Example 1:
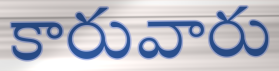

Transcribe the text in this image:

కారువారు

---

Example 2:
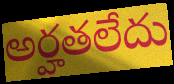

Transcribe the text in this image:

అర్హతలేదు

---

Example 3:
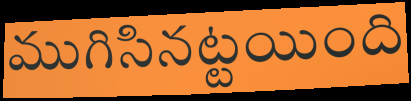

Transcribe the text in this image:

ముగిసినట్టయింది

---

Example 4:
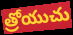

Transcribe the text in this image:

త్రోయుచు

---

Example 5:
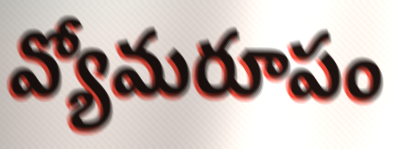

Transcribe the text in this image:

వ్యోమరూపం